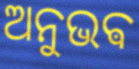
ଅନୁଭଵ